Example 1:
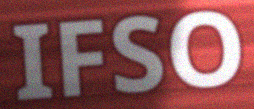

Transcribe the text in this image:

IFSO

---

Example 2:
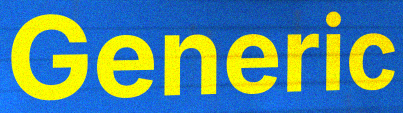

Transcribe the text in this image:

Generic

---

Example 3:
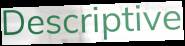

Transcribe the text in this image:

Descriptive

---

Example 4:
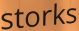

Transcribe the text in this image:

storks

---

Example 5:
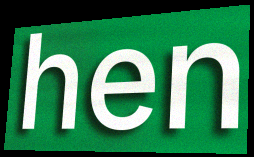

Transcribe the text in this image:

hen